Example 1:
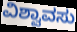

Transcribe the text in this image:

ವಿಶ್ವಾವಸು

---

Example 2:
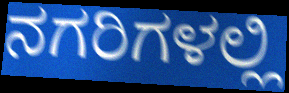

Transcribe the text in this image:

ನಗರಿಗಳಲ್ಲಿ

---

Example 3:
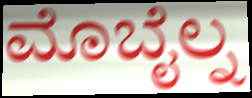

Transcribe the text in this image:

ಮೊಬೈಲ್ನ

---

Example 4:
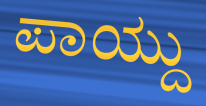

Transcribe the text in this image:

ಪಾಯ್ದು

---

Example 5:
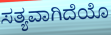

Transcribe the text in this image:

ಸತ್ಯವಾಗಿದೆಯೊ